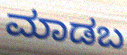
ಮಾಡಬ